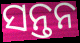
ସନ୍ତନ